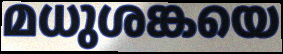
മധുശങ്കയെ